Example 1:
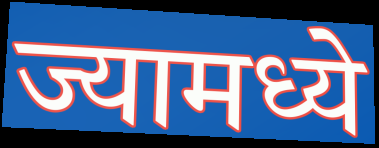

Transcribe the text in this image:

ज्यामध्ये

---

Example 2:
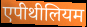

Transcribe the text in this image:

एपीथीलियम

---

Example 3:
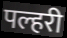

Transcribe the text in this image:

पल्हरी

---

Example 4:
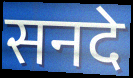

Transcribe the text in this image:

सनदे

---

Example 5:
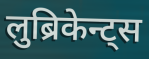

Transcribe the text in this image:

लुब्रिकेन्ट्स